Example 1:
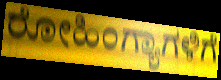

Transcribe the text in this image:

ರೋಹಿಂಗ್ಯಾಗಳಿಗೆ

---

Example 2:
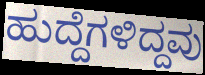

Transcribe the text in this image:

ಹುದ್ದೆಗಳಿದ್ದವು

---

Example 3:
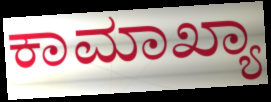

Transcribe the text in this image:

ಕಾಮಾಖ್ಯಾ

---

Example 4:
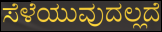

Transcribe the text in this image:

ಸೆಳೆಯುವುದಲ್ಲದೆ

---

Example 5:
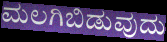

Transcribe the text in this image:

ಮಲಗಿಬಿಡುವುದು